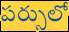
పర్సులో